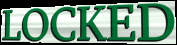
LOCKED